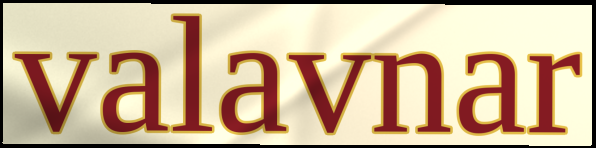
valavnar